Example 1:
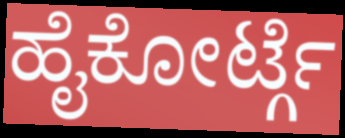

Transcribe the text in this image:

ಹೈಕೋರ್ಟ್ಗೆ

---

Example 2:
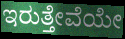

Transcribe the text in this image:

ಇರುತ್ತೇವೆಯೇ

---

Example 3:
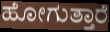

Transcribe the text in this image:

ಹೋಗುತ್ತಾರೆ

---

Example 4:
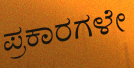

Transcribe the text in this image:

ಪ್ರಕಾರಗಳೇ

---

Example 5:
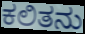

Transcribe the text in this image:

ಕಲಿತನು